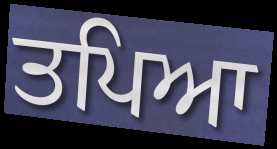
ਤਪਿਆ